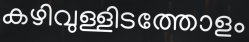
കഴിവുള്ളിടത്തോളം